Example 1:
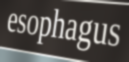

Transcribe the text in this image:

esophagus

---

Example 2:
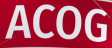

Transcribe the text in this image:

ACOG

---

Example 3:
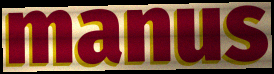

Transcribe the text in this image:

manus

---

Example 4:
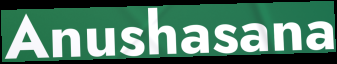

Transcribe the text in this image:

Anushasana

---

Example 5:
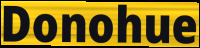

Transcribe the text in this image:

Donohue